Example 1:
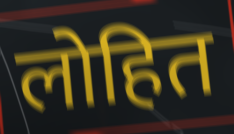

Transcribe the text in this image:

लोहित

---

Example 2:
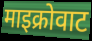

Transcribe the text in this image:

माइक्रोवाट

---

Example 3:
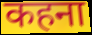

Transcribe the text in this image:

कहना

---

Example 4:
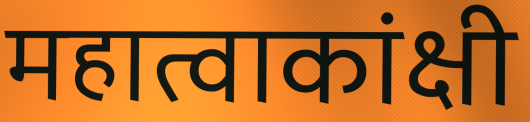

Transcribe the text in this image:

महात्वाकांक्षी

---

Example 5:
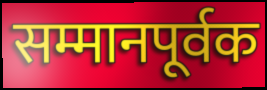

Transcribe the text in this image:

सम्मानपूर्वक